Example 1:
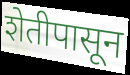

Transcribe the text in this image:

शेतीपासून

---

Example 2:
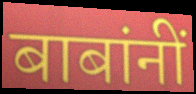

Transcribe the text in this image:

बाबांनीं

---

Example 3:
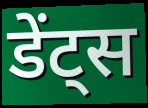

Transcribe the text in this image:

डेंट्स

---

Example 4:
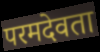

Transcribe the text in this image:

परमदेवता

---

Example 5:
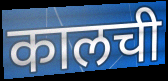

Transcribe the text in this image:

कालची